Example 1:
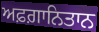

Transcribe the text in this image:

ਅਫ਼ਗ਼ਾਨਿਤਾਨ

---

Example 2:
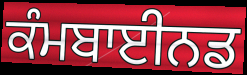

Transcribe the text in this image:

ਕੰਮਬਾਈਨਡ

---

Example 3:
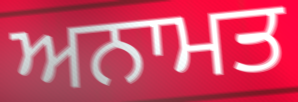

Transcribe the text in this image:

ਅਨਾਮਤ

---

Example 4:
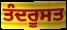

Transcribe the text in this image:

ਤੰਦਰੂਸਤ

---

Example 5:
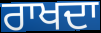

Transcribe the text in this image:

ਰਾਖਦਾ